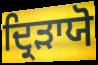
ਦ੍ਰਿੜਾਯੋ